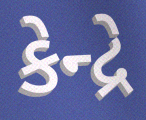
કેન્દ્રે